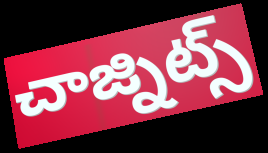
చాజ్నిట్స్